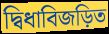
দ্বিধাবিজড়িত